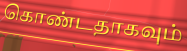
கொண்டதாகவும்